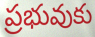
ప్రభువుకు